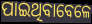
ପାଇଥିବାବେଳେ